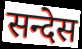
सन्देस